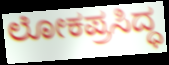
ಲೋಕಪ್ರಸಿದ್ಧ